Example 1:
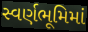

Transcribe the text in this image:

સ્વર્ણભૂમિમાં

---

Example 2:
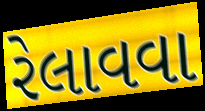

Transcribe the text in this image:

રેલાવવા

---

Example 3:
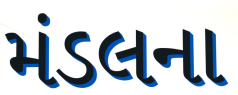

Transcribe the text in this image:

મંડલના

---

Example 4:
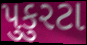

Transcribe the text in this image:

પુકુરટા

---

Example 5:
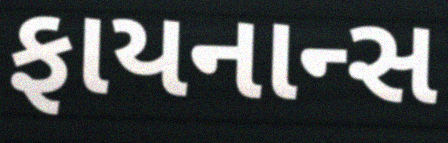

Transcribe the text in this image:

ફાયનાન્સ